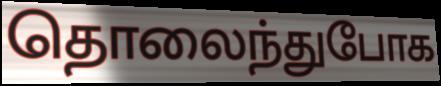
தொலைந்துபோக